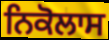
ਨਿਕੋਲਾਸ